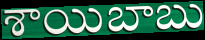
శాయిబాబు